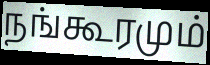
நங்கூரமும்